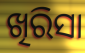
ଖିରିସା